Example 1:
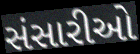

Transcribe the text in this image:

સંસારીઓ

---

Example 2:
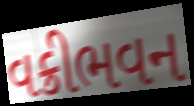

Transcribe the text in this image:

વક્રીભવન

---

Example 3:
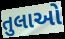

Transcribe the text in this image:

તુલાઓ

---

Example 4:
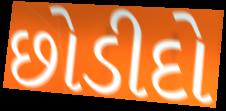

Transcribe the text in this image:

છોડીદો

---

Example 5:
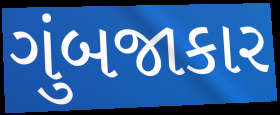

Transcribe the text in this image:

ગુંબજાકાર